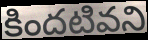
కిందటివని